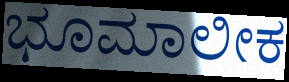
ಭೂಮಾಲೀಕ